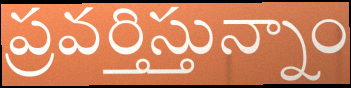
ప్రవర్తిస్తున్నాం